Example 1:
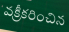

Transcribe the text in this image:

వక్రీకరించిన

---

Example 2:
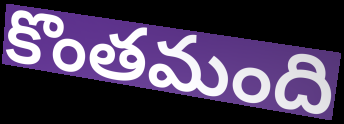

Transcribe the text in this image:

కొంతమంది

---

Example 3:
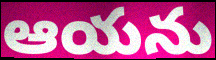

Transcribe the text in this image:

ఆయను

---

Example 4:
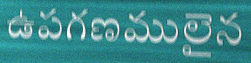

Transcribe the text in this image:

ఉపగణములైన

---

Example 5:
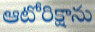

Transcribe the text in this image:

ఆటోరిక్షాను